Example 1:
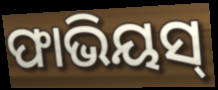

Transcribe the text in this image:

ଫାଭିୟସ୍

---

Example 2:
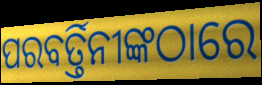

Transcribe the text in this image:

ପରବର୍ତ୍ତିନୀଙ୍କଠାରେ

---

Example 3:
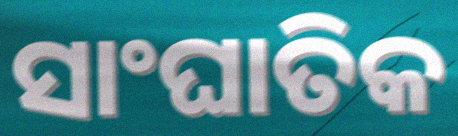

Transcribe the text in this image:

ସାଂଘାତିକ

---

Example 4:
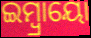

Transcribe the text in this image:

ଇମ୍ବ୍ରାୟୋ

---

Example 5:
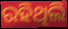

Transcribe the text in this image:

ରହିଥିଲି